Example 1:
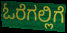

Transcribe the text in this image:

ಓರೆಗಲ್ಲಿಗೆ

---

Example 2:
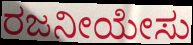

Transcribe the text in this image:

ರಜನೀಯೇಸು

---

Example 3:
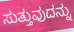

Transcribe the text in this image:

ಸುತ್ತುವುದನ್ನು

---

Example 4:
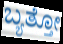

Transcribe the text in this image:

ಬ್ಯತ್ತೋ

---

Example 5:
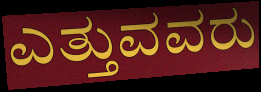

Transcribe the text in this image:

ಎತ್ತುವವರು